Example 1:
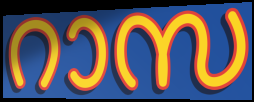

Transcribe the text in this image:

റാസ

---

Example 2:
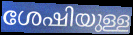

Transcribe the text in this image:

ശേഷിയുള്ള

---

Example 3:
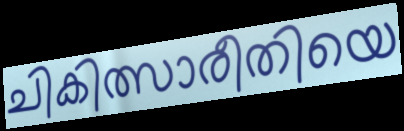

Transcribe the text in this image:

ചികിത്സാരീതിയെ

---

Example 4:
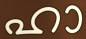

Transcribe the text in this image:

ഹാ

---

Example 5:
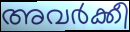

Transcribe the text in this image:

അവർക്കീ